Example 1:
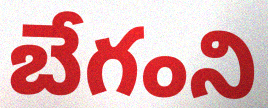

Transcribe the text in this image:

బేగంని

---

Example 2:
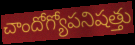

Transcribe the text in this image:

చాందోగ్యోపనిషత్తు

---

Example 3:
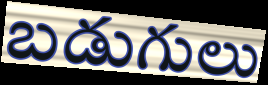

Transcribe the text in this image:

బడుగులు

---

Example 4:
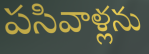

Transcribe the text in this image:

పసివాళ్లను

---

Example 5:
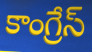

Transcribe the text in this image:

కాంగ్రేస్